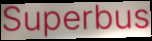
Superbus